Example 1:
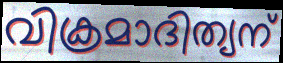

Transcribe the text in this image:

വിക്രമാദിത്യന്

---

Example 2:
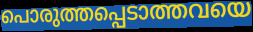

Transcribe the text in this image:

പൊരുത്തപ്പെടാത്തവയെ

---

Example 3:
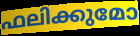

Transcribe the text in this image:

ഫലിക്കുമോ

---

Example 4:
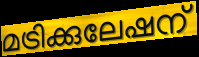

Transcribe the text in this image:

മട്രിക്കുലേഷന്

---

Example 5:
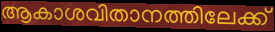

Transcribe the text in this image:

ആകാശവിതാനത്തിലേക്ക്